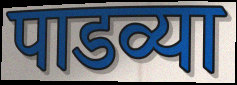
पाडव्या